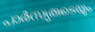
പാർസ്യരുടെയും